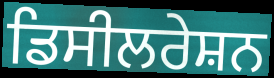
ਡਿਸੀਲਰੇਸ਼ਨ